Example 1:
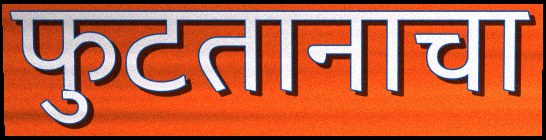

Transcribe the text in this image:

फुटतानाचा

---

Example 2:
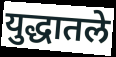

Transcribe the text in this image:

युद्धातले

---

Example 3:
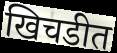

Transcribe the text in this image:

खिचडीत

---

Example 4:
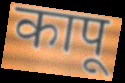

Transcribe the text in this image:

कापू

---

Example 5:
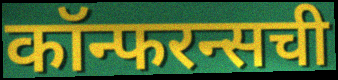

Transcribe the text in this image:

कॉन्फरन्सची